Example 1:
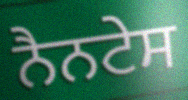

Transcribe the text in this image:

ਨੈਨਟੇਸ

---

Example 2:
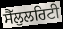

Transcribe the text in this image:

ਸੈੱਲੁਲਰਿਟੀ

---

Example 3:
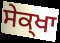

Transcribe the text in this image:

ਸੇਕ੍ਖਾ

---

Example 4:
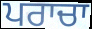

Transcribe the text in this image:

ਪਰਾਚਾ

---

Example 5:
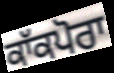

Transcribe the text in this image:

ਕਾੱਕਪੋਰਾ